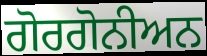
ਗੋਰਗੋਨੀਅਨ